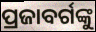
ପ୍ରଜାବର୍ଗଙ୍କୁ